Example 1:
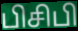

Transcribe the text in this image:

பிசிபி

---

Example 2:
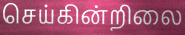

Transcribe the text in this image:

செய்கின்றிலை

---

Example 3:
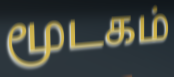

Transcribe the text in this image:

மூடகம்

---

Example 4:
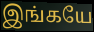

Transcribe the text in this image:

இங்கயே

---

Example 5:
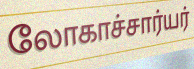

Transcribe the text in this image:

லோகாச்சார்யர்